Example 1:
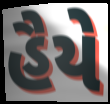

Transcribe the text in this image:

હૈયે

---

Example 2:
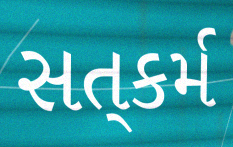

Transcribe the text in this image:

સત્‌કર્મ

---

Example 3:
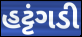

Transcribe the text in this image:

હટ્ટંગડી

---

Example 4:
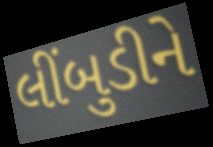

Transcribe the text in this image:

લીંબુડીને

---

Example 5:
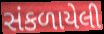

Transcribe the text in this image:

સંકળાયેલી